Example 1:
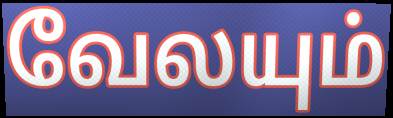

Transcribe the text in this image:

வேலயும்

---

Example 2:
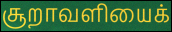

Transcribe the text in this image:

சூறாவளியைக்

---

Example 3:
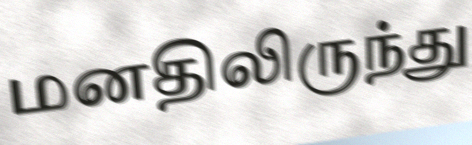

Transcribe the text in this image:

மனதிலிருந்து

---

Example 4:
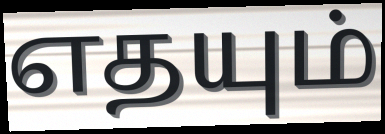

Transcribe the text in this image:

எதயும்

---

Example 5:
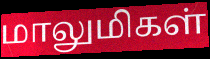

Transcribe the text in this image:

மாலுமிகள்